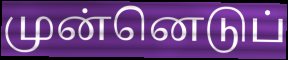
முன்னெடுப்